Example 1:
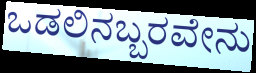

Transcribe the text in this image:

ಒಡಲಿನಬ್ಬರವೇನು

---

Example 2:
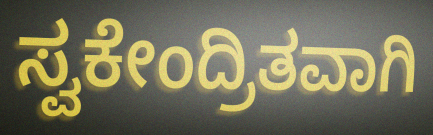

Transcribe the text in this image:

ಸ್ವಕೇಂದ್ರಿತವಾಗಿ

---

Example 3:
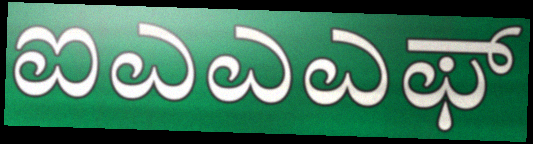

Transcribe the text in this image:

ಐಎಎಎಫ್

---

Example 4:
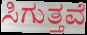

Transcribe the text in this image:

ಸಿಗುತ್ತವೆ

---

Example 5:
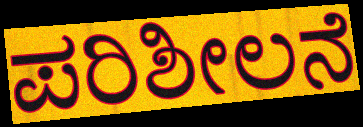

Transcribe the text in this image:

ಪರಿಶೀಲನೆ